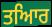
ਤਆਿਰ